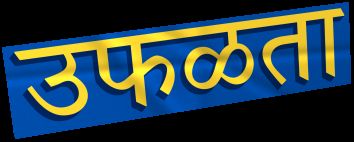
उफळता